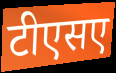
टीएसए